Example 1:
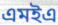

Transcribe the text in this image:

এমইএ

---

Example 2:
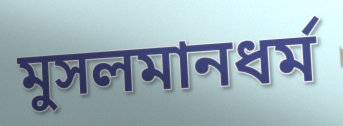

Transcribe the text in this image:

মুসলমানধর্ম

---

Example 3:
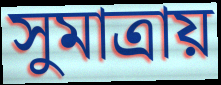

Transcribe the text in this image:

সুমাত্রায়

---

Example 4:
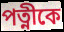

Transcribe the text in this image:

পত্নীকে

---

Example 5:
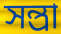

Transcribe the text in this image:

সন্ত্রা